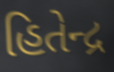
હિતેન્દ્ર